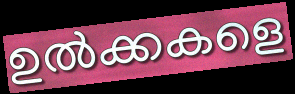
ഉൽക്കകളെ